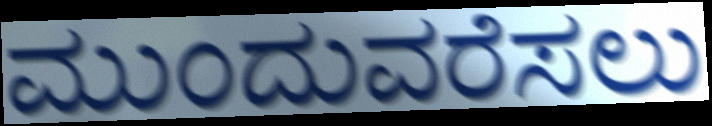
ಮುಂದುವರೆಸಲು